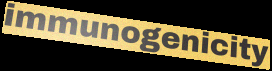
immunogenicity